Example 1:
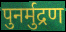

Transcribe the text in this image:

पुनर्मुद्रण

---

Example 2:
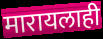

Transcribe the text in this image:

मारायलाही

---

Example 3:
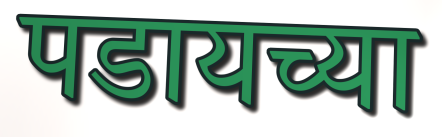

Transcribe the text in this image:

पडायच्या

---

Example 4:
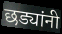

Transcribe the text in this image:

छड्यांनी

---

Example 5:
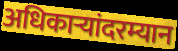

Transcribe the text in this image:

अधिकाऱ्यांदरम्यान